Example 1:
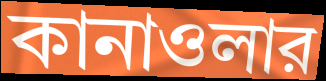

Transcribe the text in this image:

কানাওলার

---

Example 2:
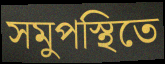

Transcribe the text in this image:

সমুপস্থিতে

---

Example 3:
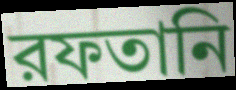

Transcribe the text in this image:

রফতানি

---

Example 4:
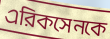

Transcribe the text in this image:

এরিকসেনকে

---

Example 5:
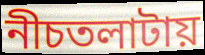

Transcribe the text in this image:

নীচতলাটায়